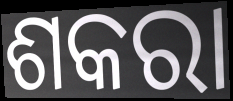
ଶକରା